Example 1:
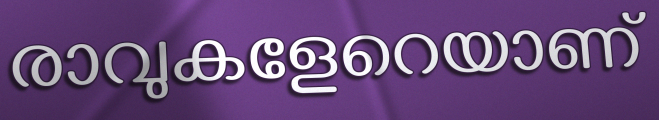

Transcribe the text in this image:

രാവുകളേറെയാണ്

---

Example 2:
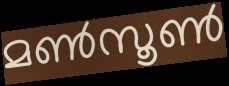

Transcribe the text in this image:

മൺസൂൺ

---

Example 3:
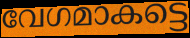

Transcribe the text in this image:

വേഗമാകട്ടെ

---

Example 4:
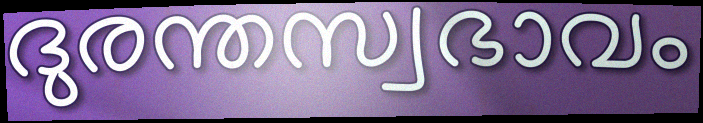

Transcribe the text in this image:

ദുരന്തസ്വഭാവം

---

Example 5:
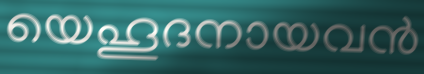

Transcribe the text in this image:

യെഹൂദനായവൻ